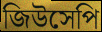
জিউসেপি